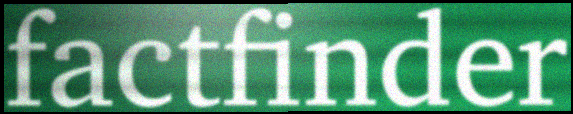
factfinder